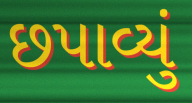
છપાવ્યું